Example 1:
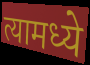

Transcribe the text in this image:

त्यामध्ये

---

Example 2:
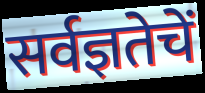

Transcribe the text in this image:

सर्वज्ञतेचें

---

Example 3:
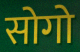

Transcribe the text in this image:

सोगो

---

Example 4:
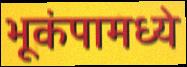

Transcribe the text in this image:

भूकंपामध्ये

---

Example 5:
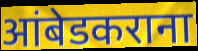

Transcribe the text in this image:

आंबेडकराना